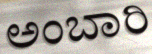
ಅಂಬಾರಿ